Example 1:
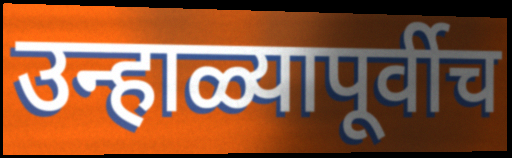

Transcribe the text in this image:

उन्हाळ्यापूर्वीच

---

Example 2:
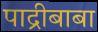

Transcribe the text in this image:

पाद्रीबाबा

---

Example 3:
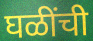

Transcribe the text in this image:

घळींची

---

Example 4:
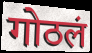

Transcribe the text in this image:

गोठलं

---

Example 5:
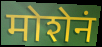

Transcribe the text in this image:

मोशेनं